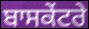
ਬਾਸਕੇਂਟਰੇ